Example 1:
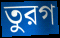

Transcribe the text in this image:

তুরগ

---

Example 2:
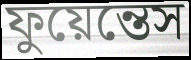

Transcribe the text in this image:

ফুয়েন্তেস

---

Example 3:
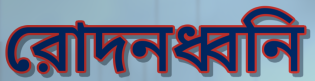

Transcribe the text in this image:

রোদনধ্বনি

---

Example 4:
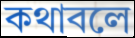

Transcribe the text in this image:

কথাবলে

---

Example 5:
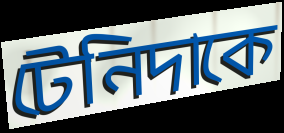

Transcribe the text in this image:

টেনিদাকে